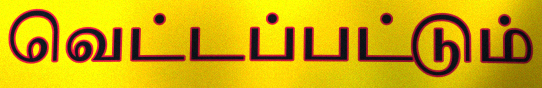
வெட்டப்பட்டும்